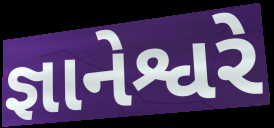
જ્ઞાનેશ્વરે